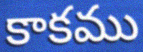
కాకము